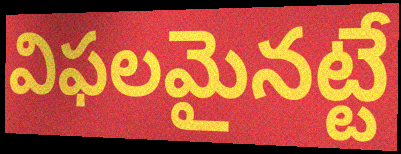
విఫలమైనట్టే